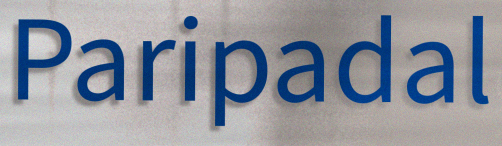
Paripadal